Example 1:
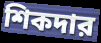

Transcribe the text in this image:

শিকদার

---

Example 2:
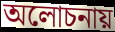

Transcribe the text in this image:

অলোচনায়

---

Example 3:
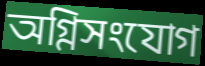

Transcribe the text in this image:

অগ্নিসংযোগ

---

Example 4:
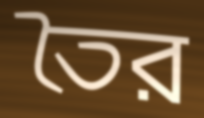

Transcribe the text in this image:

তৈর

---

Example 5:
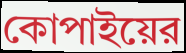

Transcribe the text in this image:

কোপাইয়ের